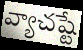
వ్యాచష్టే